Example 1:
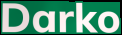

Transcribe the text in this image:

Darko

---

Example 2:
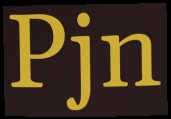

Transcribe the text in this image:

Pjn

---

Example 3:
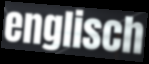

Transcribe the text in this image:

englisch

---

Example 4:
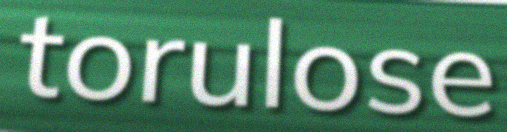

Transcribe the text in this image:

torulose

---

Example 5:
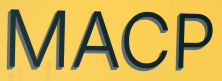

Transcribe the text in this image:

MACP